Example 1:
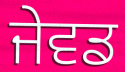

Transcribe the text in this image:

ਜੇਵਡ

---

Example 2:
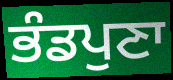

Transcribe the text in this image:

ਭੰਡਪੁਣਾ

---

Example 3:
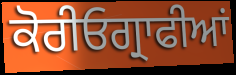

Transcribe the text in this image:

ਕੋਰੀਓਗ੍ਰਾਫੀਆਂ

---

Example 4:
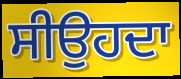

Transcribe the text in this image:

ਸੀਉਹਦਾ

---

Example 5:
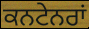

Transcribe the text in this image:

ਕਨਟੇਨਰਾਂ